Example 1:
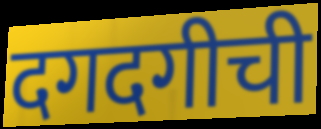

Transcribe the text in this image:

दगदगीची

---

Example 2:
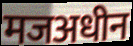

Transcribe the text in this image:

मजअधीन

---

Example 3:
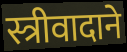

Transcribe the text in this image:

स्त्रीवादाने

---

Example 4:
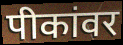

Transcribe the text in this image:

पीकांवर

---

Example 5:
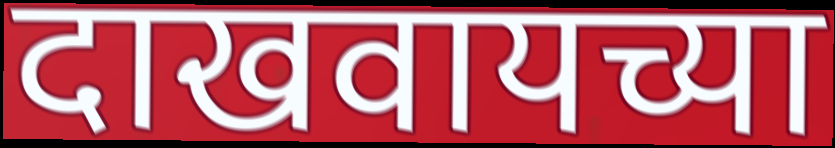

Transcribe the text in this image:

दाखवायच्या